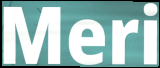
Meri